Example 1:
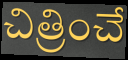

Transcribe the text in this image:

చిత్రించే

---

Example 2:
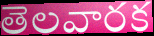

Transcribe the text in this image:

తెలవారక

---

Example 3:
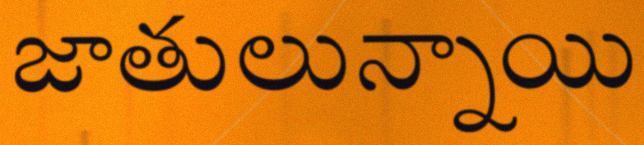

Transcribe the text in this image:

జాతులున్నాయి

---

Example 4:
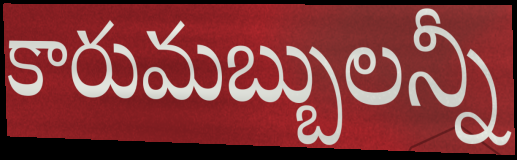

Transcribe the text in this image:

కారుమబ్బులన్నీ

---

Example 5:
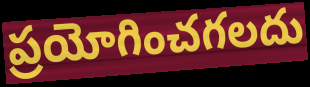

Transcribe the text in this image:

ప్రయోగించగలదు